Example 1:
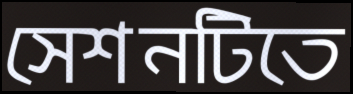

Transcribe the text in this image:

সেশনটিতে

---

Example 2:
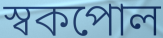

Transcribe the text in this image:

স্বকপোল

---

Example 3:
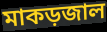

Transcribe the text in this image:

মাকড়জাল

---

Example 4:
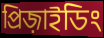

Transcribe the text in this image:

প্রিজ়াইডিং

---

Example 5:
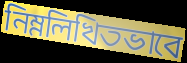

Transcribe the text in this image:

নিম্নলিখিতভাবে